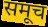
समूच